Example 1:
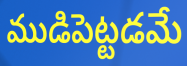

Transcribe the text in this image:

ముడిపెట్టడమే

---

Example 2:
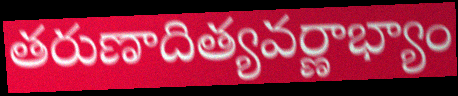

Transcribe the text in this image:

తరుణాదిత్యవర్ణాభ్యాం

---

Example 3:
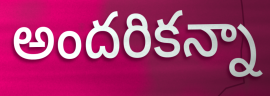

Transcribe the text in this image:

అందరికన్నా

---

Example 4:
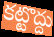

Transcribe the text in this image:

కట్టొద్దు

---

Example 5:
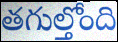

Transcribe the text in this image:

తగుల్తోంది